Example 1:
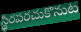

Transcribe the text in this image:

స్థిరపరచుకొనుట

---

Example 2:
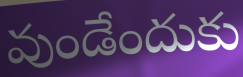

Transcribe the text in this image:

వుండేందుకు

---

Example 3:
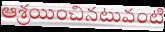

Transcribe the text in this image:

ఆశ్రయించినటువంటి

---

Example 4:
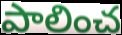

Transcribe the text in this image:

పాలించ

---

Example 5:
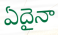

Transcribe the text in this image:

ఏదైనా